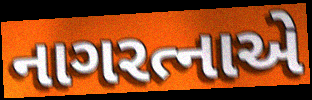
નાગરત્નાએ